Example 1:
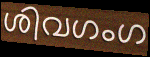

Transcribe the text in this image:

ശിവഗംഗ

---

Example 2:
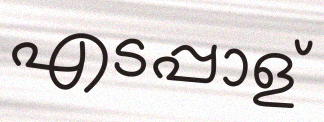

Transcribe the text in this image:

എടപ്പാള്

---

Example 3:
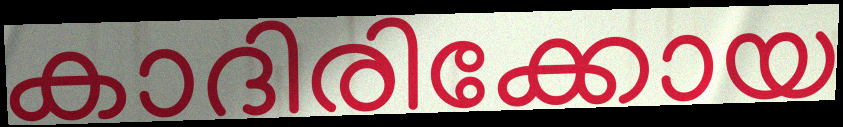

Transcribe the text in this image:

കാദിരിക്കോയ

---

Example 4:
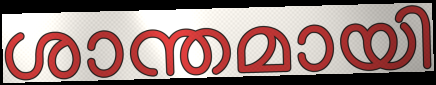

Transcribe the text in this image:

ശാന്തമായി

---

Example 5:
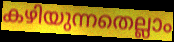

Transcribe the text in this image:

കഴിയുന്നതെല്ലാം